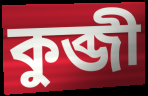
কুব্জী